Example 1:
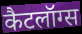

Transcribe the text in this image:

कैटलॉग्स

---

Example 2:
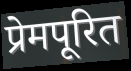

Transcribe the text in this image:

प्रेमपूरित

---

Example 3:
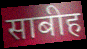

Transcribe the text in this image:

साबीह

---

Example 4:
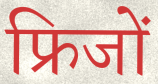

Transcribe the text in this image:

फ्रिजों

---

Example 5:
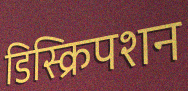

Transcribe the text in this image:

डिस्क्रिपशन